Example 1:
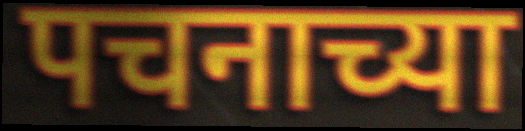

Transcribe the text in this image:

पचनाच्या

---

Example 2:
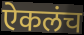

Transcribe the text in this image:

ऐकलंच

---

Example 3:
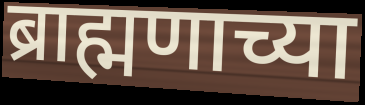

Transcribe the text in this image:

ब्राह्मणाच्या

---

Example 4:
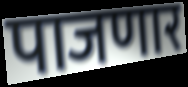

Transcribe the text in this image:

पाजणार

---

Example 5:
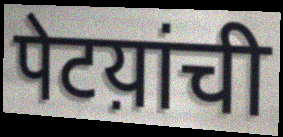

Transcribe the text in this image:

पेटय़ांची